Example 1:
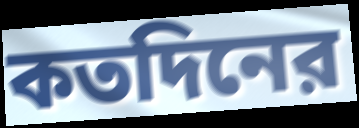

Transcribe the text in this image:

কতদিনের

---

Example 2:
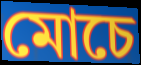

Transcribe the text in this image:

মোচে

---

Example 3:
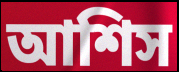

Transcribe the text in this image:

আশিস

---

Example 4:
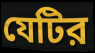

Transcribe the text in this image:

যেটির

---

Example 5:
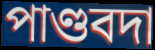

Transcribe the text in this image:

পাণ্ডবদা